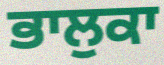
ਭਾਲੁਕਾ